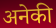
अनेकी